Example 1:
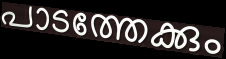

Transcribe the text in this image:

പാടത്തേക്കും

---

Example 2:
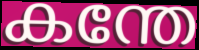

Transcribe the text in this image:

കന്തേ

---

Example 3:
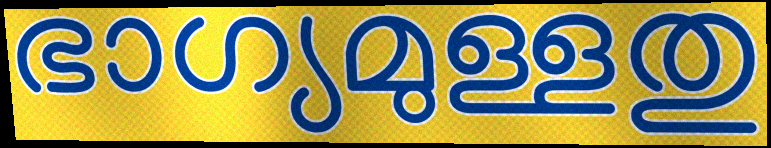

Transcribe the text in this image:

ഭാഗ്യമുള്ളതു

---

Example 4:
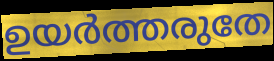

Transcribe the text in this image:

ഉയർത്തരുതേ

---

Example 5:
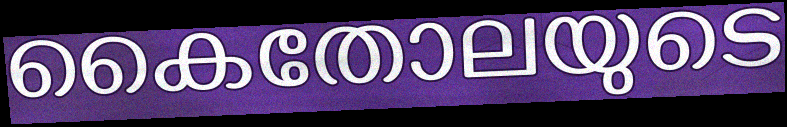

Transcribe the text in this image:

കൈതോലയുടെ